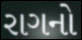
રાગનો